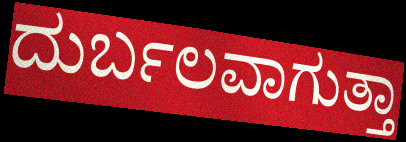
ದುರ್ಬಲವಾಗುತ್ತಾ